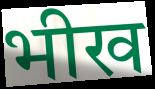
भीख